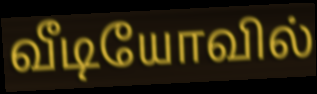
வீடியோவில்